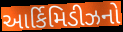
આર્કિમિડીઝનો